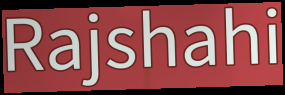
Rajshahi